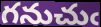
గనుచుఁ